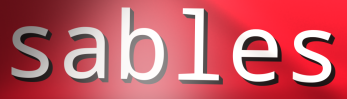
sables